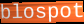
blospot